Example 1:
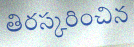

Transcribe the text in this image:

తిరస్కరించిన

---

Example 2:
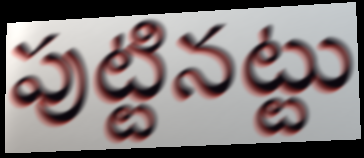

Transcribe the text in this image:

పుట్టినట్టు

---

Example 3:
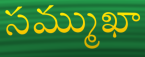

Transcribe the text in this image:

సమ్ముఖా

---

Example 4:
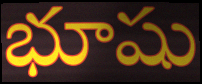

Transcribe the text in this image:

భూషు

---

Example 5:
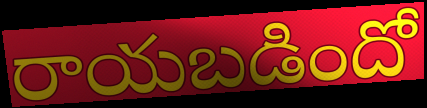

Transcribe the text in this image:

రాయబడిందో